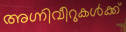
അഗ്നിവീറുകൾക്ക്